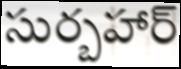
సుర్బహార్